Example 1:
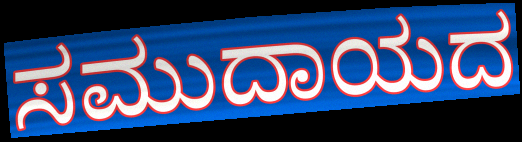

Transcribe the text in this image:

ಸಮುದಾಯದ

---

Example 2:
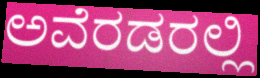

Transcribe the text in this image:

ಅವೆರಡರಲ್ಲಿ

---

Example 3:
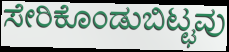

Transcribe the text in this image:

ಸೇರಿಕೊಂಡುಬಿಟ್ಟವು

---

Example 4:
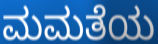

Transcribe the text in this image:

ಮಮತೆಯ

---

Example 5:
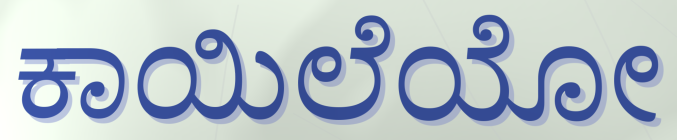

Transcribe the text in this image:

ಕಾಯಿಲೆಯೋ